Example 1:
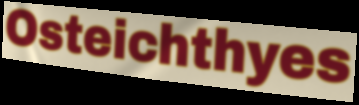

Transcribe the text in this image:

Osteichthyes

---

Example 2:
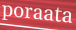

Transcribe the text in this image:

poraata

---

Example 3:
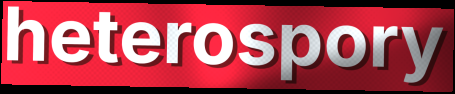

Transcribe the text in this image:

heterospory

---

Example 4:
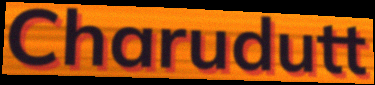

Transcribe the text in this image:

Charudutt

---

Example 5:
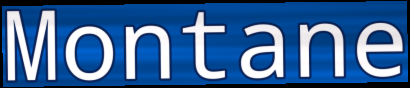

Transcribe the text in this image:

Montane